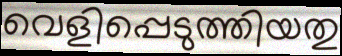
വെളിപ്പെടുത്തിയതു